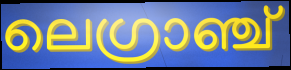
ലെഗ്രാഞ്ച്